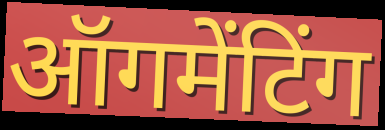
ऑगमेंटिंग